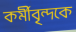
কর্মীবৃন্দকে